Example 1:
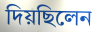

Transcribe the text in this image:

দিয়ছিলেন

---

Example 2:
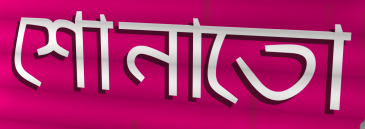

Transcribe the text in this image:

শোনাতো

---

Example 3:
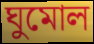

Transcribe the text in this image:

ঘুমোল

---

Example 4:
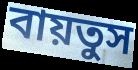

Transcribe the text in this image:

বায়তুস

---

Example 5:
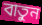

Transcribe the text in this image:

বাতুন